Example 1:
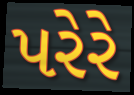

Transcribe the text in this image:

પરેરે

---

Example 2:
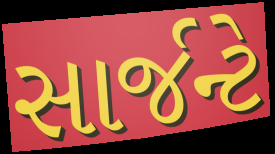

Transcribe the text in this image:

સાર્જન્ટે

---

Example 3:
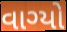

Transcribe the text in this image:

વાગ્યો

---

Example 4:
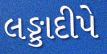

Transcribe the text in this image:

લઙ્કાદીપે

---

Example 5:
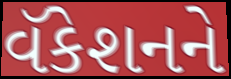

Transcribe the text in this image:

વૅકેશનને